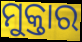
ମୁକ୍ତାର